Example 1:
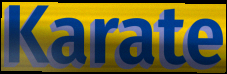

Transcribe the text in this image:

Karate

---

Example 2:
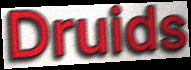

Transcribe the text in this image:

Druids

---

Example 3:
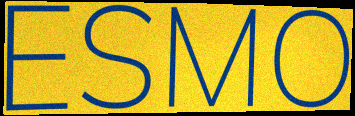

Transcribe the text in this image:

ESMO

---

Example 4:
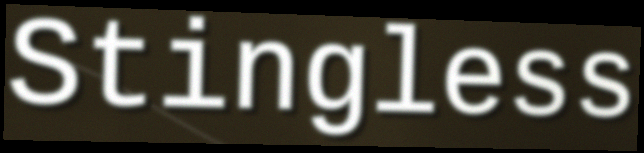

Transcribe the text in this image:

Stingless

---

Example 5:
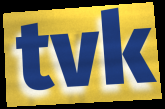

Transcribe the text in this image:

tvk